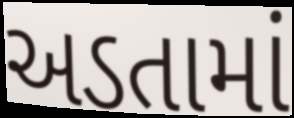
અડતામાં